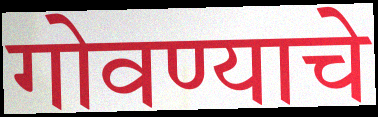
गोवण्याचे